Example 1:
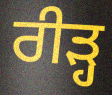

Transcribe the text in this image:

ਰੀੜ੍ਹ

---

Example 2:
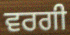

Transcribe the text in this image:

ਵਰਗੀ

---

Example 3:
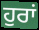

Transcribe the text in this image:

ਹੁਰਾਂ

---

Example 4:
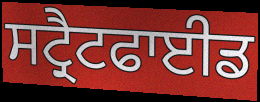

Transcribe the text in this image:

ਸਟ੍ਰੈਟਫਾਈਡ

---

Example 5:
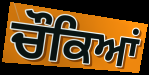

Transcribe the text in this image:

ਚੌਕਿਆਂ